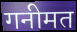
गनीमत